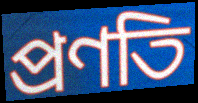
প্ৰণতি